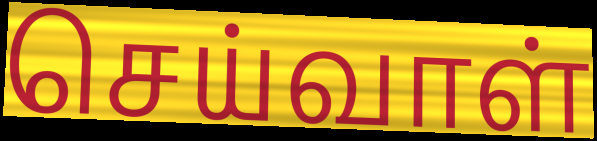
செய்வாள்